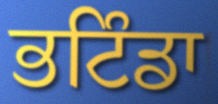
ਭਟਿੰਡਾ